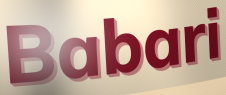
Babari